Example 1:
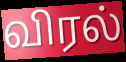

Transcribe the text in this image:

விரல்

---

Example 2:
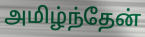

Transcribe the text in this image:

அமிழ்ந்தேன்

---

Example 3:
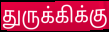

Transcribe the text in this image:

துருக்கிக்கு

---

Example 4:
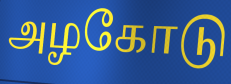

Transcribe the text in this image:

அழகோடு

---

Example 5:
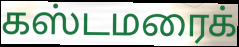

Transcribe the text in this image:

கஸ்டமரைக்